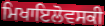
ਮਿਖਾਇਲੋਵਸਕੀ